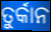
ତୁର୍କାନ